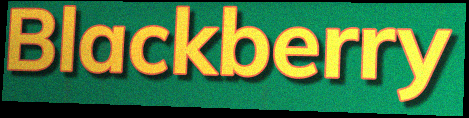
Blackberry